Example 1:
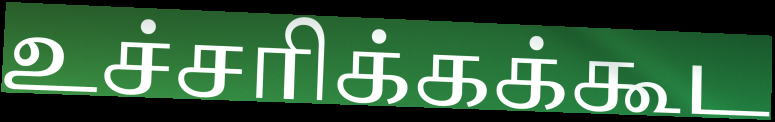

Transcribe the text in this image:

உச்சரிக்கக்கூட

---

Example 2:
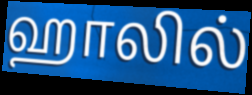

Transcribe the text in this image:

ஹாலில்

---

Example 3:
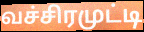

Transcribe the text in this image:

வச்சிரமுட்டி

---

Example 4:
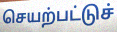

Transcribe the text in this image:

செயற்பட்டுச்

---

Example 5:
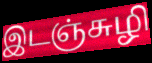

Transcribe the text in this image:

இடஞ்சுழி